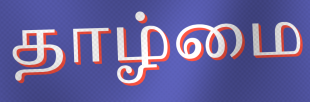
தாழ்மை